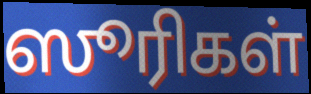
ஸூரிகள்